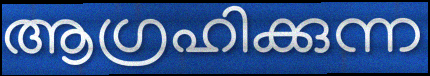
ആഗ്രഹിക്കുന്ന